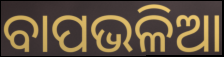
ବାପଭଳିଆ